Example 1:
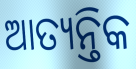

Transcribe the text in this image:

ଆତ୍ୟନ୍ତିକ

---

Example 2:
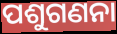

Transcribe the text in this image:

ପଶୁଗଣନା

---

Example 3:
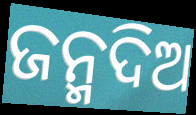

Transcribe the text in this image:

ଜନ୍ମଦିଅ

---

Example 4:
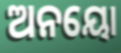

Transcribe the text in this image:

ଅନୟୋ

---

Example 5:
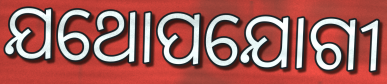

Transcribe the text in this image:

ଯଥୋପଯୋଗୀ